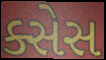
ક્સેસ